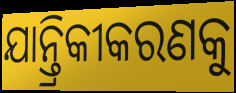
ଯାନ୍ତ୍ରିକୀକରଣକୁ